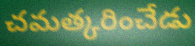
చమత్కరించేడు